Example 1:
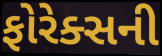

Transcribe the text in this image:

ફોરેક્સની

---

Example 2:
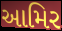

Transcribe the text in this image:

આમિર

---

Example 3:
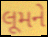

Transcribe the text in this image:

લૂમને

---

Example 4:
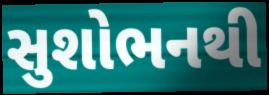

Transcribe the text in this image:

સુશોભનથી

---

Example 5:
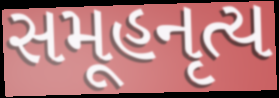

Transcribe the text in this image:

સમૂહનૃત્ય